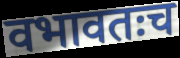
वभावतःच